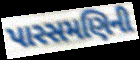
પારસમણિની